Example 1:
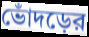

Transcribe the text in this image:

ভোঁদড়ের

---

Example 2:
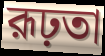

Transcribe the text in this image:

রূঢ়তা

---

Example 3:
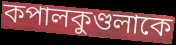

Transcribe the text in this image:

কপালকুণ্ডলাকে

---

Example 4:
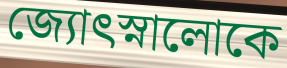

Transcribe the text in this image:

জ্যোৎস্নালোকে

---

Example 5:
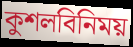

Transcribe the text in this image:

কুশলবিনিময়